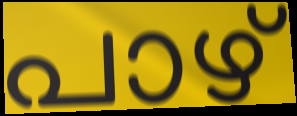
പാഴ്